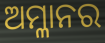
ଅମ୍ଳାନର